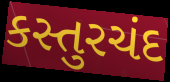
કસ્તુરચંદ